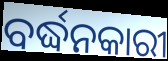
ବର୍ଦ୍ଧନକାରୀ